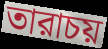
তারাচয়